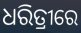
ଧରିତ୍ରୀରେ